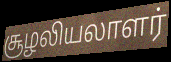
சூழலியலாளர்